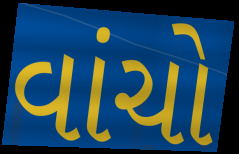
વાંચો